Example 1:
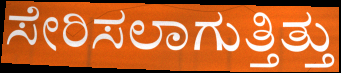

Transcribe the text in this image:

ಸೇರಿಸಲಾಗುತ್ತಿತ್ತು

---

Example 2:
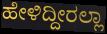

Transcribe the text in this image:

ಹೇಳಿದ್ದೀರಲ್ಲಾ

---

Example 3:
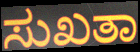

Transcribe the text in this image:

ಸುಖತಾ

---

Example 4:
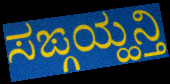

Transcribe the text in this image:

ಸಙ್ಗಯ್ಹನ್ತಿ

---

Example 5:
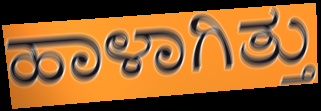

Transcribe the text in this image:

ಹಾಳಾಗಿತ್ತು